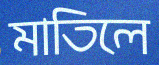
মাতিলে